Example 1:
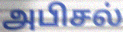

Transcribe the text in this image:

அபிசல்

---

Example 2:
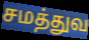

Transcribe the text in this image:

சமத்துவ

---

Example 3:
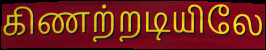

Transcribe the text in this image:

கிணற்றடியிலே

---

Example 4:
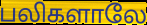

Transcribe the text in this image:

பலிகளாலே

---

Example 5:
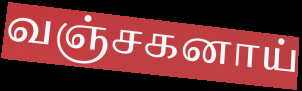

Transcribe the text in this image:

வஞ்சகனாய்